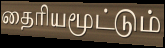
தைரியமூட்டும்